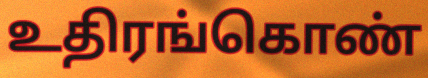
உதிரங்கொண்